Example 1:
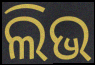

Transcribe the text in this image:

ଲିଭ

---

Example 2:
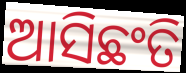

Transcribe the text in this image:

ଆସିଛଂତି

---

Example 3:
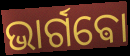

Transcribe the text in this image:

ଭାର୍ଗଵୋ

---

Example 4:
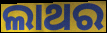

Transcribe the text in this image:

ଲାଥର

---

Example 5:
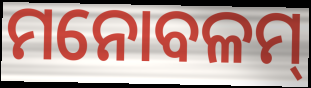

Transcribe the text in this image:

ମନୋବଳମ୍